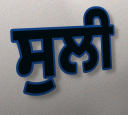
ਸੁਲੀ